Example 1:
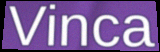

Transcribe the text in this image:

Vinca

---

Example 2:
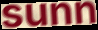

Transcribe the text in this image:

sunn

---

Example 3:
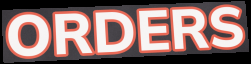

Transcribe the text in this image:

ORDERS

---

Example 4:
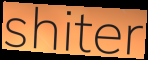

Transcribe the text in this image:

shiter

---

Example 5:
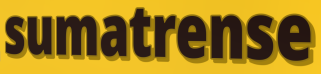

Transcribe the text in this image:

sumatrense